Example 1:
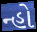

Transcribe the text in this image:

ન્હો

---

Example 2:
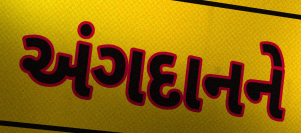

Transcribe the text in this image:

અંગદાનને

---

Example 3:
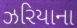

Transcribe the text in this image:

ઝરિયાના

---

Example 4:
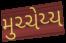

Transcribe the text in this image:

મુચ્ચેય્ય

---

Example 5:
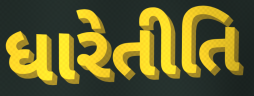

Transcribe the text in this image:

ધારેતીતિ